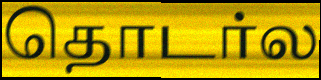
தொடர்ல